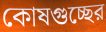
কোষগুচ্ছের